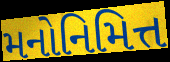
મનોનિમિત્ત